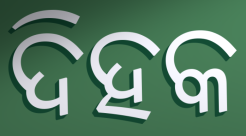
ଦିହକ